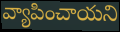
వ్యాపించాయని